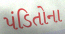
પંડિતોના